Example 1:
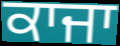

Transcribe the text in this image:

ਕਾਜਾ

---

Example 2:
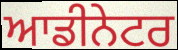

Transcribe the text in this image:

ਆਡੀਨੇਟਰ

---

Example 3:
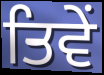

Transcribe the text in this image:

ਤਿਵੇਂ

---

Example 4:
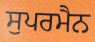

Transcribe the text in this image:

ਸੁਪਰਮੈਨ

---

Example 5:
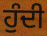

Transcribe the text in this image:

ਹੁੰਦੀ